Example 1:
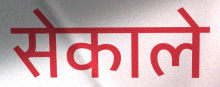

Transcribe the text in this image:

सेकाले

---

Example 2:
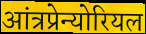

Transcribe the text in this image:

आंत्रप्रेन्योरियल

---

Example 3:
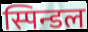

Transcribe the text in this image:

स्पिन्डल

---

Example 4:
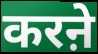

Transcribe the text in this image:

करऩे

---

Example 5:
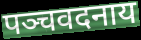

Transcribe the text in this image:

पञ्चवदनाय